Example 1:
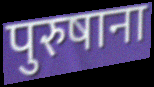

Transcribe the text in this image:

पुरुषाना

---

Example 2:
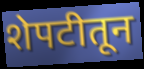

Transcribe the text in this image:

शेपटीतून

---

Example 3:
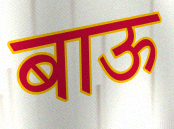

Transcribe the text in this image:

बाऊ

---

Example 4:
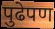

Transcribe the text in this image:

पुढेपण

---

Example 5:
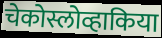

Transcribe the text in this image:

चेकोस्लोव्हाकिया